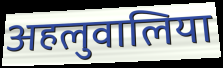
अहलुवालिया